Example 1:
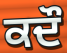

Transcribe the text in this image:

ਕਦੌ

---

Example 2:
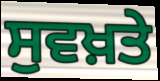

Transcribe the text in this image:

ਸੁਵਖ਼ਤੇ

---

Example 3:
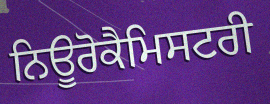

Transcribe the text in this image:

ਨਿਊਰੋਕੈਮਿਸਟਰੀ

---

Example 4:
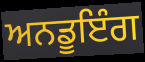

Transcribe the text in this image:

ਅਨਡੂਇੰਗ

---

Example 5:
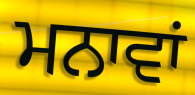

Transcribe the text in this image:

ਮਨਾਵਾਂ